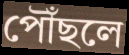
পৌঁছলে